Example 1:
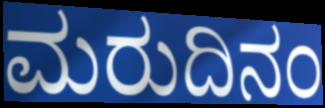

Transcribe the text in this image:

ಮರುದಿನಂ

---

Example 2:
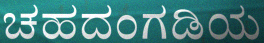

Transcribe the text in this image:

ಚಹದಂಗಡಿಯ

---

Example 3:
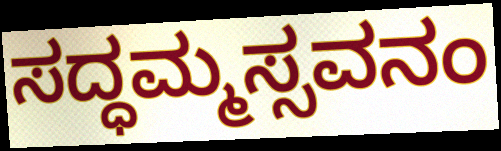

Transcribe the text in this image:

ಸದ್ಧಮ್ಮಸ್ಸವನಂ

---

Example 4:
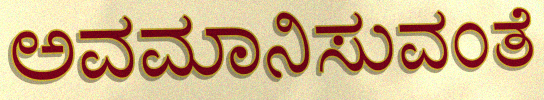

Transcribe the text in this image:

ಅವಮಾನಿಸುವಂತೆ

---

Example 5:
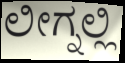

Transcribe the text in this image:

ಲೀಗ್ನಲ್ಲಿ